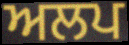
ਅਲਪ